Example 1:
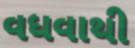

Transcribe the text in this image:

વધવાથી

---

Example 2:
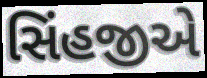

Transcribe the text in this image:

સિંહજીએ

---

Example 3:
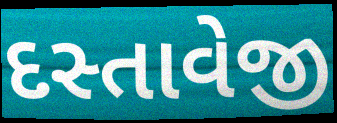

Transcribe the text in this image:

દસ્તાવેજી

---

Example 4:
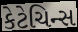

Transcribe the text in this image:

કેટેચિન્સ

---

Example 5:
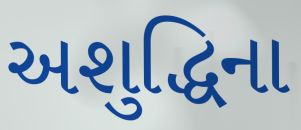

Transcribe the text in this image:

અશુદ્ધિના